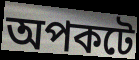
অপকটে